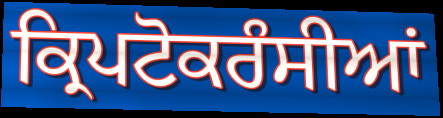
ਕ੍ਰਿਪਟੋਕਰੰਸੀਆਂ